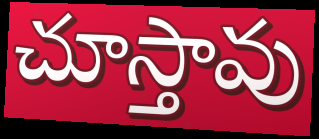
చూస్తావు